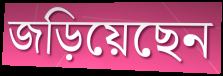
জড়িয়েছেন